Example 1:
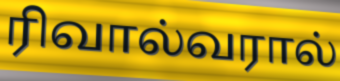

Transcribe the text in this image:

ரிவால்வரால்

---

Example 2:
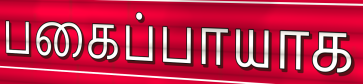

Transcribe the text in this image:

பகைப்பாயாக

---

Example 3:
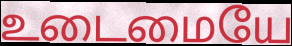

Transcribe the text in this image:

உடைமையே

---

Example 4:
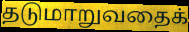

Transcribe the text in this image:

தடுமாறுவதைக்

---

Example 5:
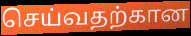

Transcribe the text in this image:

செய்வதற்கான